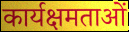
कार्यक्षमताओं